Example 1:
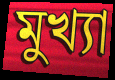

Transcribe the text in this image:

মুখ্যা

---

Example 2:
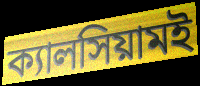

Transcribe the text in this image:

ক্যালসিয়ামই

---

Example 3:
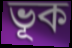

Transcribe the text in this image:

ভূক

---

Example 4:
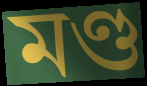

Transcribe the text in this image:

মণ্ড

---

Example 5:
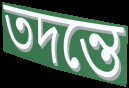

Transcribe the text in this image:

তদন্তে